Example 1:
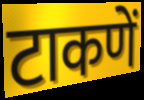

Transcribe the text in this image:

टाकणें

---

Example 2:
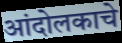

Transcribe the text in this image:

आंदोलकाचे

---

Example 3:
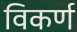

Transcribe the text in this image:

विकर्ण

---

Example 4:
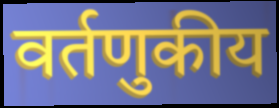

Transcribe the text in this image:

वर्तणुकीय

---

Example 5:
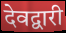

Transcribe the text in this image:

देवद्वारी